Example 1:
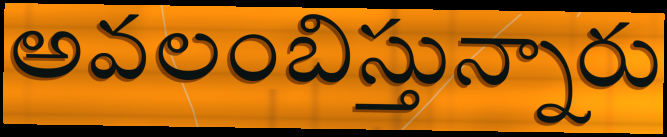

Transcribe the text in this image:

అవలంబిస్తున్నారు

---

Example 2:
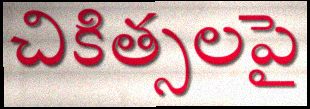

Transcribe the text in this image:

చికిత్సలపై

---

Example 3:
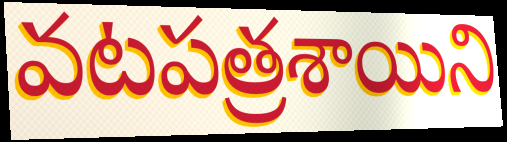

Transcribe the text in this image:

వటపత్రశాయిని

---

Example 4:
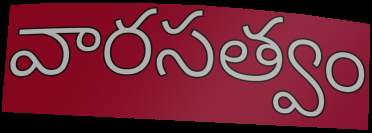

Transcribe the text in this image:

వారసత్వం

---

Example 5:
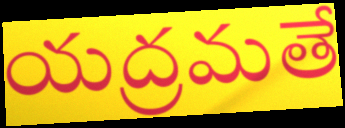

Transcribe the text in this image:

యద్రమతే